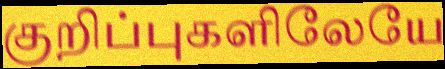
குறிப்புகளிலேயே